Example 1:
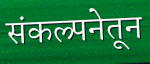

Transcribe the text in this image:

संकल्पनेतून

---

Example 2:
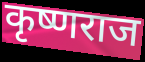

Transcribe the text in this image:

कृष्णराज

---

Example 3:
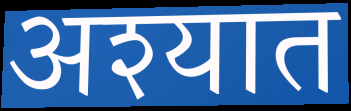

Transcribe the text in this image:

अश्यात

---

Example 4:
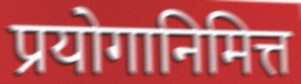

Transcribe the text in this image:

प्रयोगानिमित्त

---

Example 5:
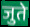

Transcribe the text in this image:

जुते